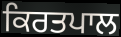
ਕਿਰਤਪਾਲ